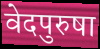
वेदपुरुषा